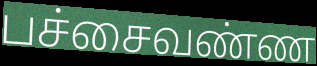
பச்சைவண்ண